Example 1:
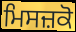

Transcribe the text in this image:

ਮਿਸਜ਼ਕੋ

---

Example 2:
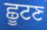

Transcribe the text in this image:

ਛੂਟਣ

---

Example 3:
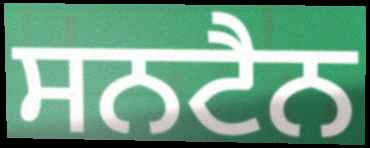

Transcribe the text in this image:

ਸਨਟੈਨ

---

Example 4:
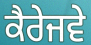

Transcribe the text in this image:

ਕੈਰੇਜਵੇ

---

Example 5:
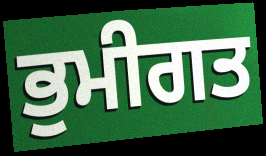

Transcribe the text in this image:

ਭੁਮੀਗਤ